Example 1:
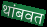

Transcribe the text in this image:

थांबवत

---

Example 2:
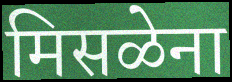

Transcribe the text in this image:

मिसळेना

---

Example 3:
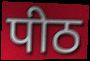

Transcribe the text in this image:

पीठ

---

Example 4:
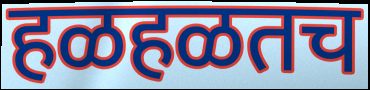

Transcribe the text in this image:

हळहळतच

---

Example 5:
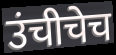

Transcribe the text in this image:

उंचीचेच